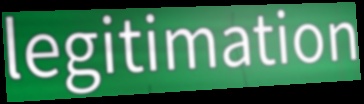
legitimation